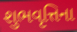
શુભવૃત્તિના